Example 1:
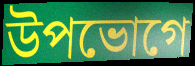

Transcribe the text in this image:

উপভোগে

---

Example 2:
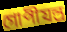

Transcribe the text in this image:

গোপীযন্ত্র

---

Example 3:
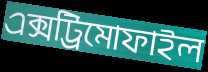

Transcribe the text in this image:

এক্সট্রিমোফাইল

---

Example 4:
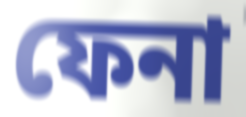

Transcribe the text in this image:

ফেনা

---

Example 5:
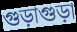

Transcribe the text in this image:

গুড়াগুড়া